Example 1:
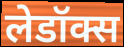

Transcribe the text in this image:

लेडॉक्स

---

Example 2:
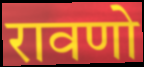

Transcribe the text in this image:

रावणो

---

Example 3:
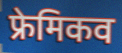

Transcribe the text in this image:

फ्रेमिकव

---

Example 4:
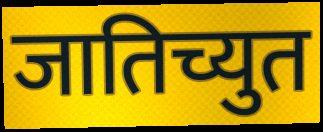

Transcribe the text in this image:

जातिच्युत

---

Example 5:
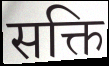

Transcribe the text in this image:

सक्ति